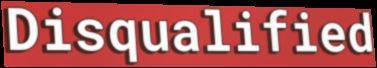
Disqualified